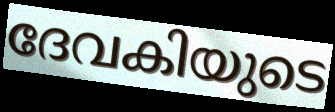
ദേവകിയുടെ